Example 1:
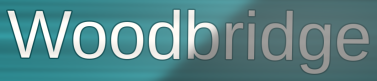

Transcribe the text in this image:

Woodbridge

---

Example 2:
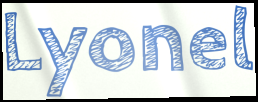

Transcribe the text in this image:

Lyonel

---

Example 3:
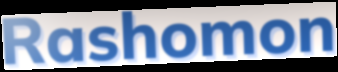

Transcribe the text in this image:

Rashomon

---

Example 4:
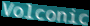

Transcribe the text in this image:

Volconic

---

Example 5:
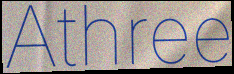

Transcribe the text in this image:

Athree